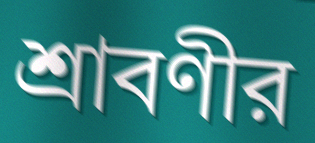
শ্রাবণীর